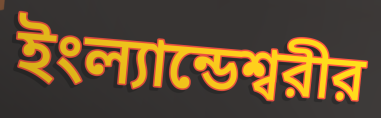
ইংল্যান্ডেশ্বরীর